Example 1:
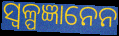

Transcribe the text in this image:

ସ୍ଵଳ୍ପଜ୍ଞାନେନ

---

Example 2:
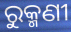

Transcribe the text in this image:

ରୁକ୍ମଣୀ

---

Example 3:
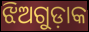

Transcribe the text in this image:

ଝିଅଗୁଡ଼ାକ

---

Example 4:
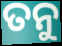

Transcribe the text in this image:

ତନୁ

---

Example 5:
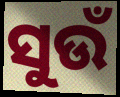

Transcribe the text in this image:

ସୁଉଁ